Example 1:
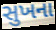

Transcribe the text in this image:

સુખના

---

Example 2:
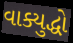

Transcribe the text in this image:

વાક્યુદ્ધો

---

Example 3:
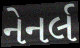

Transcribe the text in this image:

નેનર્લ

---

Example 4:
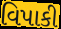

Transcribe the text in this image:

વિપાકી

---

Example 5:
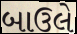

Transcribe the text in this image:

બાઉલે